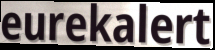
eurekalert